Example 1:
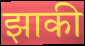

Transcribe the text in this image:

झाकी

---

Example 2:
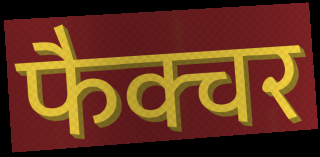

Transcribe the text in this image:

फैक्चर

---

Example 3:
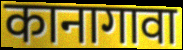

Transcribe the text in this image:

कानागावा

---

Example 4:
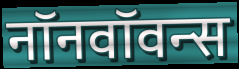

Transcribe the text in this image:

नॉनवॉवन्स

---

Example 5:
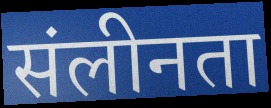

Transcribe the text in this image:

संलीनता